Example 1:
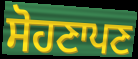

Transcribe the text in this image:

ਸੋਹਣਾਪਣ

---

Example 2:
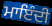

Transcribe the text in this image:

ਮਾਇੰਦੀ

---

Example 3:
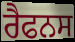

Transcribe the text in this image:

ਰੈਫਨਸ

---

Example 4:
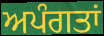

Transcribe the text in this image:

ਅਪੰਗਤਾਂ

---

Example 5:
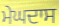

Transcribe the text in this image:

ਮੇਘਦਾਸ